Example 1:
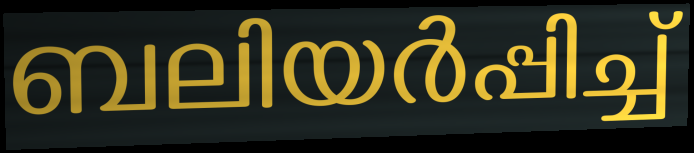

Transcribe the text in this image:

ബലിയർപ്പിച്ച്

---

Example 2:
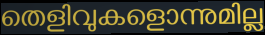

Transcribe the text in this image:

തെളിവുകളൊന്നുമില്ല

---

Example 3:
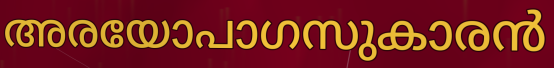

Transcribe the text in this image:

അരയോപാഗസുകാരൻ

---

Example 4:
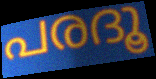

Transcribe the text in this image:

പരദൂ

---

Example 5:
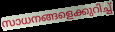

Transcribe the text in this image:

സാധനങ്ങളെക്കുറിച്ച്